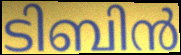
ടിബിൻ